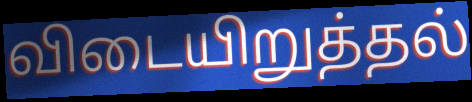
விடையிறுத்தல்